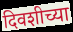
दिवशीच्या